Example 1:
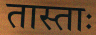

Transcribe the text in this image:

तास्ताः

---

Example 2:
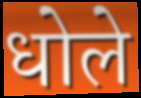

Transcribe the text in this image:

धोले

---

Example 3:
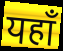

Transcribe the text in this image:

यहाँ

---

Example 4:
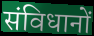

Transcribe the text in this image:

संविधानों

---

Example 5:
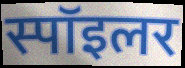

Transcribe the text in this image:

स्पॉइलर